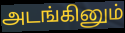
அடங்கினும்